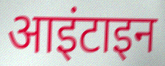
आइंटाइन